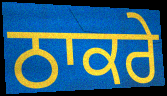
ਠਾਕਰੇ